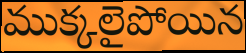
ముక్కలైపోయిన